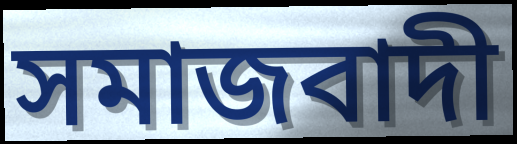
সমাজবাদী